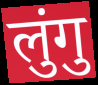
लुंगु